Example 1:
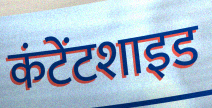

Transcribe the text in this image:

कंटेंटशाइड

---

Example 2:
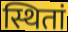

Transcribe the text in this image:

स्थितां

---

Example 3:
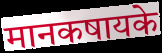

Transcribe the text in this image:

मानकषायके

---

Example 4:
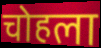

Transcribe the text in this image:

चोहला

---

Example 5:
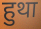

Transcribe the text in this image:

हुथा